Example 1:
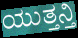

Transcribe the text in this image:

ಯುತ್ತನ್ತಿ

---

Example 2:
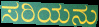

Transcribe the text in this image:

ಸರಿಯನು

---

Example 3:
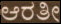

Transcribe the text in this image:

ಆರತೀ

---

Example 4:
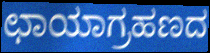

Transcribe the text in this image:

ಛಾಯಾಗ್ರಹಣದ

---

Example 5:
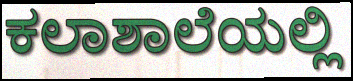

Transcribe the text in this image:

ಕಲಾಶಾಲೆಯಲ್ಲಿ